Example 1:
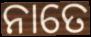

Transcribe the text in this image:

ନାତେ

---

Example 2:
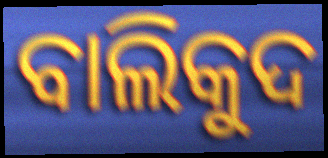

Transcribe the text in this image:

ବାଲିକୁଦ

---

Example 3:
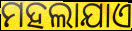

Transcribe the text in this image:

ମହଲାଯାଏ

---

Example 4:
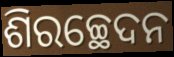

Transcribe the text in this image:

ଶିରଚ୍ଛେଦନ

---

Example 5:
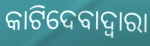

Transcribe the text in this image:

କାଟିଦେବାଦ୍ଵାରା